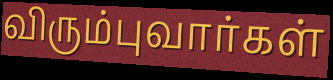
விரும்புவார்கள்